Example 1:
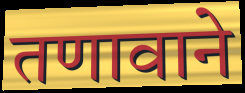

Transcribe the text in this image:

तणावाने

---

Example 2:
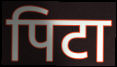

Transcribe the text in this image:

पिटा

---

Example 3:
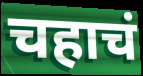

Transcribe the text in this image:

चहाचं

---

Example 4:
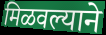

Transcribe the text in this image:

मिळवल्याने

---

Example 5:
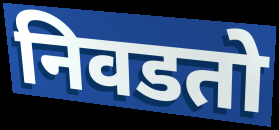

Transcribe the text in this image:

निवडतो